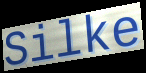
Silke